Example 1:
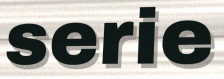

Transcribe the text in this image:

serie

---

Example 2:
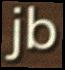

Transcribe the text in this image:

jb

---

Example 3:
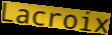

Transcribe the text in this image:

Lacroix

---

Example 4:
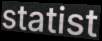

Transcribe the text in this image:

statist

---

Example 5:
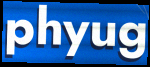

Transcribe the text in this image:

phyug